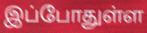
இப்போதுள்ள